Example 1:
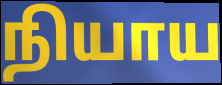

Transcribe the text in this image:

நியாய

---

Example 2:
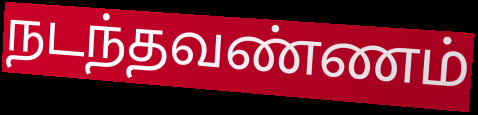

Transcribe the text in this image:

நடந்தவண்ணம்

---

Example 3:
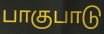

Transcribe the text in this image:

பாகுபாடு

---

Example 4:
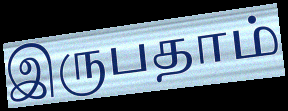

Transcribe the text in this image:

இருபதாம்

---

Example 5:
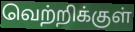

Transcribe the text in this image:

வெற்றிக்குள்